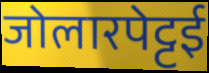
जोलारपेट्टई